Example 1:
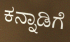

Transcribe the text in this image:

ಕನ್ನಾಡಿಗೆ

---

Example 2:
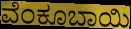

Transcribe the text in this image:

ವೆಂಕೂಬಾಯಿ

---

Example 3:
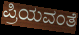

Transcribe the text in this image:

ಪ್ರಿಯವಂತೆ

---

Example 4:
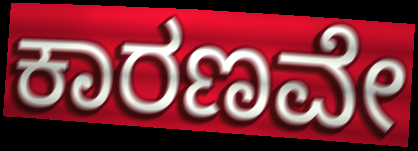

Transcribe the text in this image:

ಕಾರಣವೇ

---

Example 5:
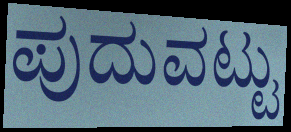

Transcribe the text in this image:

ಪುದುವಟ್ಟು